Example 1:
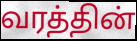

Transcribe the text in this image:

வரத்தின்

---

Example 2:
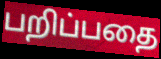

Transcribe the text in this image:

பறிப்பதை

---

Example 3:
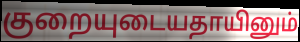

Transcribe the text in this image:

குறையுடையதாயினும்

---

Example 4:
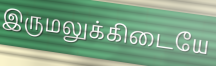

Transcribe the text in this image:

இருமலுக்கிடையே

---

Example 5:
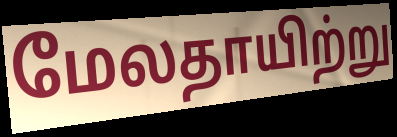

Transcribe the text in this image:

மேலதாயிற்று